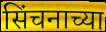
सिंचनाच्या